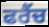
ਫਰੈਂਚ